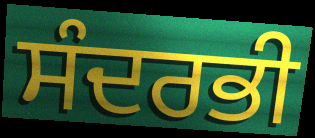
ਸੰਦਰਭੀ